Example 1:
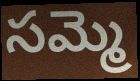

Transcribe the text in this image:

సమ్మె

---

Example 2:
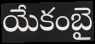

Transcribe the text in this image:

యేకంబై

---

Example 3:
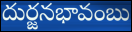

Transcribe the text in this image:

దుర్జనభావంబు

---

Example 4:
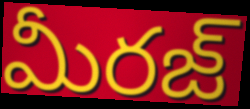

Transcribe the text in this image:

మీరజ్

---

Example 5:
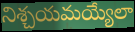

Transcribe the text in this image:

నిశ్చయమయ్యేలా